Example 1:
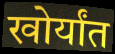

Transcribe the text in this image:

खोर्यांत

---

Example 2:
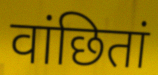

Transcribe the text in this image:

वांछितां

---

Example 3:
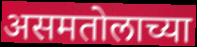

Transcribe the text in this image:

असमतोलाच्या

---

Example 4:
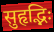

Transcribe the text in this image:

सुहृद्भिः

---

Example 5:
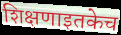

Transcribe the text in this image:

शिक्षणाइतकेच